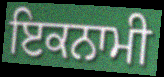
ਇਕਨਾਮੀ